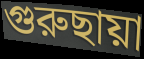
গুরুছায়া